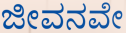
ಜೀವನವೇ